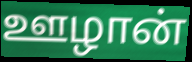
ஊழான்